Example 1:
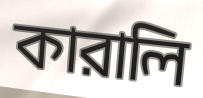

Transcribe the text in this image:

কারালি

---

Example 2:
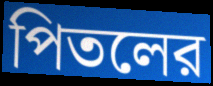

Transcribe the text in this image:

পিতলের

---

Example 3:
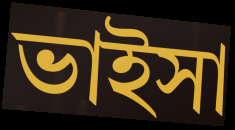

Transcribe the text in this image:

ভাইসা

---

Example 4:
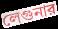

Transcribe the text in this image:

লেগুনার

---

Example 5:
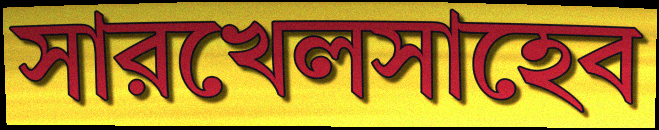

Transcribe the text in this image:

সারখেলসাহেব